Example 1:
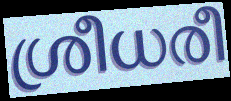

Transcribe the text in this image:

ശ്രീധരീ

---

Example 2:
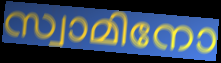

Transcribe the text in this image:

സ്വാമിനോ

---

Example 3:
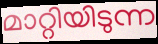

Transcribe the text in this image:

മാറ്റിയിടുന്ന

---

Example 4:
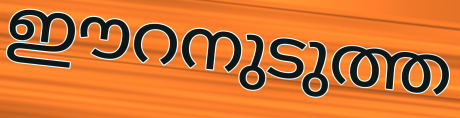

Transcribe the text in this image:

ഈറനുടുത്ത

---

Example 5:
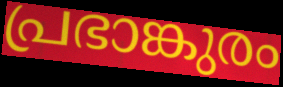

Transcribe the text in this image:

പ്രഭാങ്കുരം